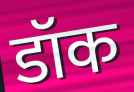
डॉक